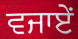
ਵਜਾਏਂ